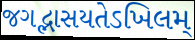
જગદ્ભાસયતેઽખિલમ્